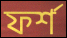
ফর্শ